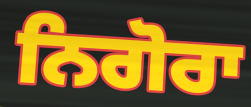
ਨਿਗੋਰਾ